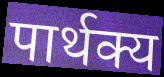
पार्थक्य